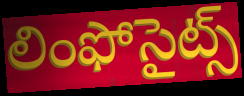
లింఫోసైట్స్